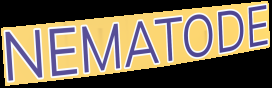
NEMATODE